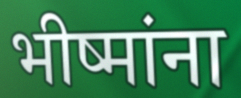
भीष्मांना